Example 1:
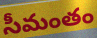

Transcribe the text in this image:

సీమంతం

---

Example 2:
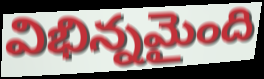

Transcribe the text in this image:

విభిన్నమైంది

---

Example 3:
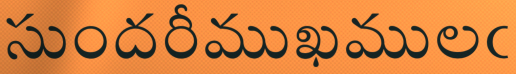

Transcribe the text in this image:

సుందరీముఖములఁ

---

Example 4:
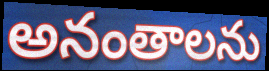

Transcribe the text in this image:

అనంతాలను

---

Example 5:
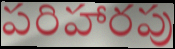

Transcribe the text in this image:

పరిహారపు